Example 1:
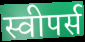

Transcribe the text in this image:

स्वीपर्स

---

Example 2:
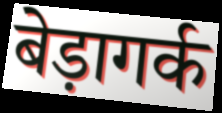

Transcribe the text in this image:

बेड़ागर्क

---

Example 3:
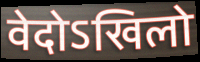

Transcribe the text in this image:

वेदोऽखिलो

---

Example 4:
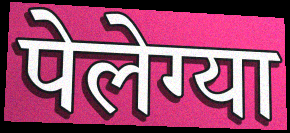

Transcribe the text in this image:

पेलेग्या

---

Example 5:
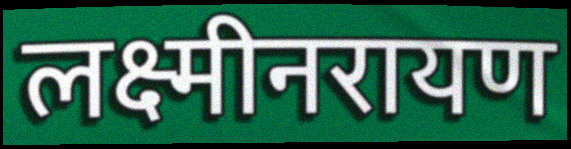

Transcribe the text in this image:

लक्ष्मीनरायण